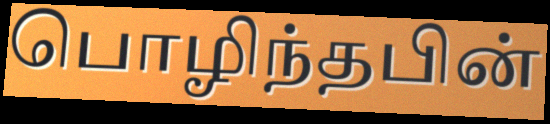
பொழிந்தபின்